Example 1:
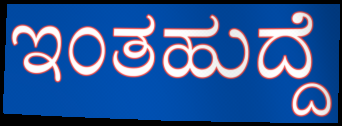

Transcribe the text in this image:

ಇಂತಹುದ್ದೆ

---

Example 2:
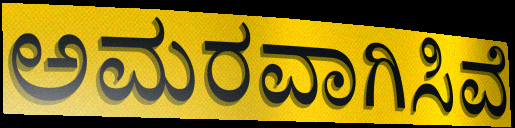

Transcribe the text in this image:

ಅಮರವಾಗಿಸಿವೆ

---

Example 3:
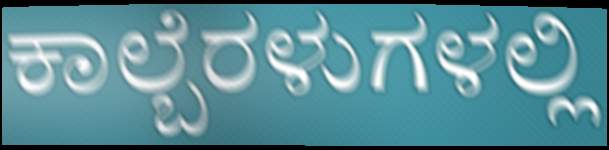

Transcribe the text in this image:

ಕಾಲ್ಬೆರಳುಗಳಲ್ಲಿ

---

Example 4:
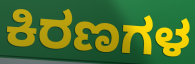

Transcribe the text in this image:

ಕಿರಣಗಳ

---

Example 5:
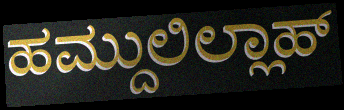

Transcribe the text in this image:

ಹಮ್ದುಲಿಲ್ಲಾಹ್